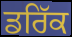
ਡਰਿੱਕ